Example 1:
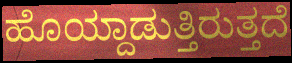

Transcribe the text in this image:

ಹೊಯ್ದಾಡುತ್ತಿರುತ್ತದೆ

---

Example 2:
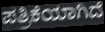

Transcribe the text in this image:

ಪತ್ರಿಕೆಯಾಗಿದೆ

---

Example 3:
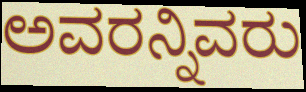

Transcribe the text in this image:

ಅವರನ್ನಿವರು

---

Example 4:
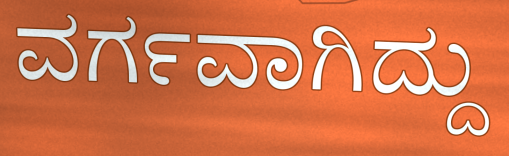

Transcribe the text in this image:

ವರ್ಗವಾಗಿದ್ದು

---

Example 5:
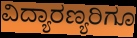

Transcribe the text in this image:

ವಿದ್ಯಾರಣ್ಯರಿಗೂ